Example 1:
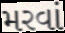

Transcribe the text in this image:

મરવાં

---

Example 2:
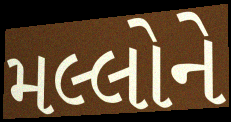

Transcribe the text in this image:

મલ્લોને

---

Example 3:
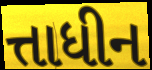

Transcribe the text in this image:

ત્તાધીન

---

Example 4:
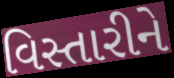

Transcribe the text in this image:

વિસ્તારીને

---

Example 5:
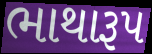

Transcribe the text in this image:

ભાથારૂપ